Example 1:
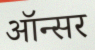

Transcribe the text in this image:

ऑन्सर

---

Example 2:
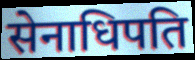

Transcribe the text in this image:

सेनाधिपति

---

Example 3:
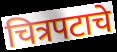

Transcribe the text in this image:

चित्रपटाचे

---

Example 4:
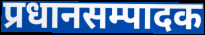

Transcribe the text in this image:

प्रधानसम्पादक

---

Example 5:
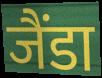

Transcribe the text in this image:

जैंडा